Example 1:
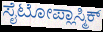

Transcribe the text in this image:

ಸೈಟೋಪ್ಲಾಸ್ಮಿಕ್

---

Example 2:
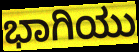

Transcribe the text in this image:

ಭಾಗಿಯು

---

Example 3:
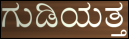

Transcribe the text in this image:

ಗುಡಿಯತ್ತ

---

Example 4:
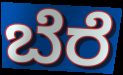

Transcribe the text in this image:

ಬೆರೆ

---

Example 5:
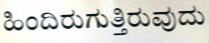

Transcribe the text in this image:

ಹಿಂದಿರುಗುತ್ತಿರುವುದು